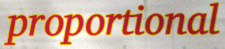
proportional